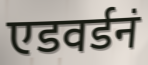
एडवर्डनं